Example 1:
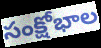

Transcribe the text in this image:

సంక్షోభాల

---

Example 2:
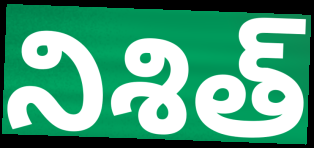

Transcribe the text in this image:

నిశిత్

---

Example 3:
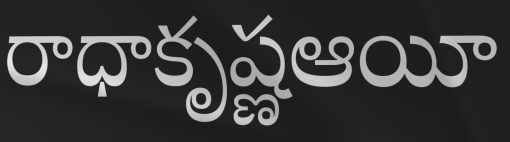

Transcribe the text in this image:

రాధాకృష్ణఆయీ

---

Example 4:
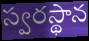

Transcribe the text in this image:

స్వరస్థాన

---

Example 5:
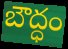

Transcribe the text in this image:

బౌద్ధం